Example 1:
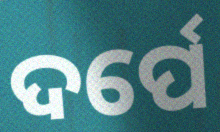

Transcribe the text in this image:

ଦର୍ପେ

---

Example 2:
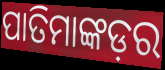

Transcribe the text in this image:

ପାତିମାଙ୍କଡ଼ର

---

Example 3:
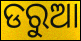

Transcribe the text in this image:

ଡରୁଆ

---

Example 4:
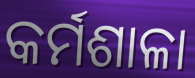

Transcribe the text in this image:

କର୍ମଶାଳା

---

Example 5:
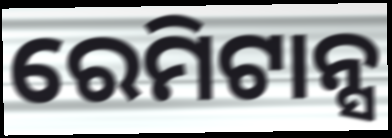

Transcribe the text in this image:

ରେମିଟାନ୍ସ